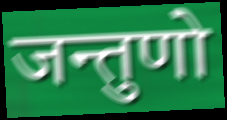
जन्तुणो